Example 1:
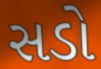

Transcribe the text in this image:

સડો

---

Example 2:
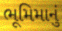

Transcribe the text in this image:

ભૂમિમાનું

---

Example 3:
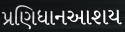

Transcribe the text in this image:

પ્રણિધાનઆશય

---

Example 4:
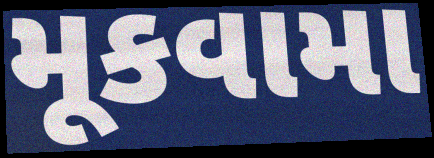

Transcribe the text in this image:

મૂકવામા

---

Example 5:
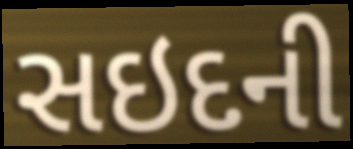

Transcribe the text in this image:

સઇદની